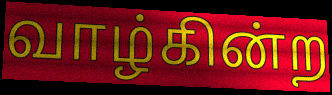
வாழ்கின்ற